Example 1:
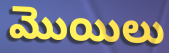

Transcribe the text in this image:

మొయిలు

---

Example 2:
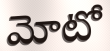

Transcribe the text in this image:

మోటో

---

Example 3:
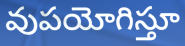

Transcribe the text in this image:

వుపయోగిస్తూ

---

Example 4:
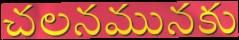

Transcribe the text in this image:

చలనమునకు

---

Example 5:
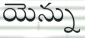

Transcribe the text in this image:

యెన్ను